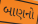
બાણનો